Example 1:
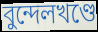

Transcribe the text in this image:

বুন্দেলখণ্ডে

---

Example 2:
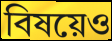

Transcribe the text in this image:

বিষয়েও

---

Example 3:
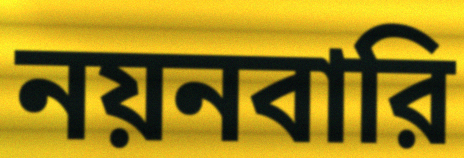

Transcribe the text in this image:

নয়নবারি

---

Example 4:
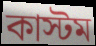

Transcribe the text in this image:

কাস্টম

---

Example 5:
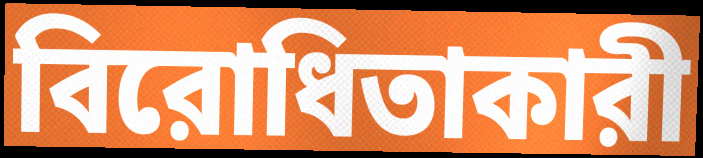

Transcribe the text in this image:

বিরোধিতাকারী